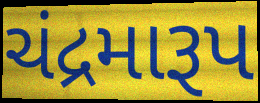
ચંદ્રમારૂપ